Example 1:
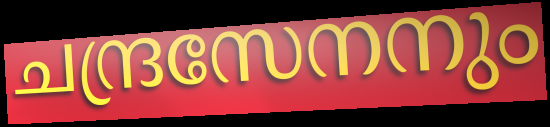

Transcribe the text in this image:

ചന്ദ്രസേനനും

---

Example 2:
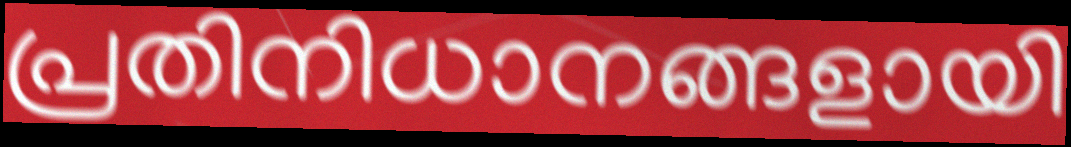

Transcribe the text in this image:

പ്രതിനിധാനങ്ങളായി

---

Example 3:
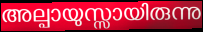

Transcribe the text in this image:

അല്പായുസ്സായിരുന്നു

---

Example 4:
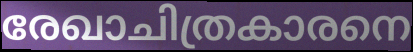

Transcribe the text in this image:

രേഖാചിത്രകാരനെ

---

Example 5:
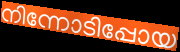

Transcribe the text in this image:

നിന്നോടിപ്പോയ